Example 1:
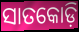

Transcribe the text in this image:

ସାତକୋଡ଼ି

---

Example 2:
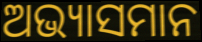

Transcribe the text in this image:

ଅଭ୍ୟାସମାନ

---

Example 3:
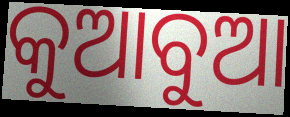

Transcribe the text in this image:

କୁଆବୁଆ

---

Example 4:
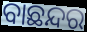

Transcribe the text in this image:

ବାଛନ୍ଦର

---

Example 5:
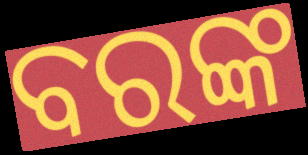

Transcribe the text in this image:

ବରଙ୍କ